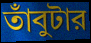
তাঁবুটার